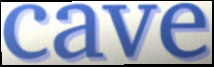
cave